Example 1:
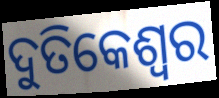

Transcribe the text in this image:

ଦୁତିକେଶ୍ୱର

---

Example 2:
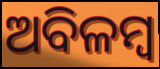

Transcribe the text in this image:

ଅବିଳମ୍ବ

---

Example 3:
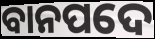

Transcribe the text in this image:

ବାନପଦେ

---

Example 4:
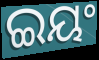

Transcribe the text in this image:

ଇୟଂ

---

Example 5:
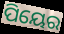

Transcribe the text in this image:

ପିୟେର